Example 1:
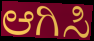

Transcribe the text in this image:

ಆಗಿಸಿ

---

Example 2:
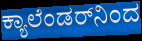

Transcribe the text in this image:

ಕ್ಯಾಲೆಂಡರ್‌ನಿಂದ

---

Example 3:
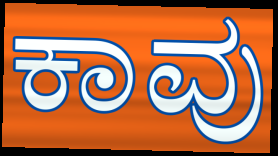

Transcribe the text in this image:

ಕಾವು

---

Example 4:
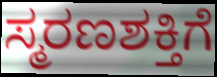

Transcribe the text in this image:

ಸ್ಮರಣಶಕ್ತಿಗೆ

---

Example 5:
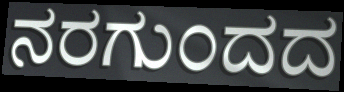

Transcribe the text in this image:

ನರಗುಂದದ